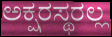
ಅಕ್ಷರಸ್ಥರಲ್ಲ